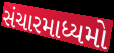
સંચારમાધ્યમો